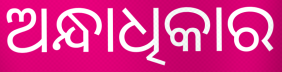
ଅନ୍ଧାଧିକାର